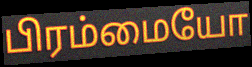
பிரம்மையோ